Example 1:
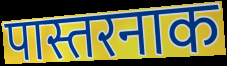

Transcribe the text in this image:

पास्तरनाक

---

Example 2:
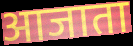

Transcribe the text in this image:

आजाता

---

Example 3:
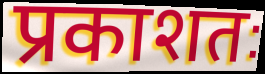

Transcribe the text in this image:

प्रकाशतः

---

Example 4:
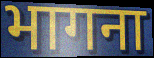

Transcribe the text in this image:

भागना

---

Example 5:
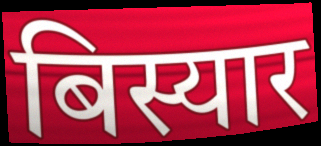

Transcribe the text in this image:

बिस्यार